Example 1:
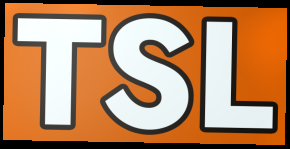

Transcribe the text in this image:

TSL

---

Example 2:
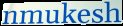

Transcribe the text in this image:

nmukesh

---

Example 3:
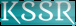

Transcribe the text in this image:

KSSR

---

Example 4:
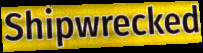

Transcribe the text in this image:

Shipwrecked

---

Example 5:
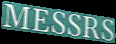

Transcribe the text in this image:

MESSRS